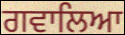
ਗਵਾਲਿਆ